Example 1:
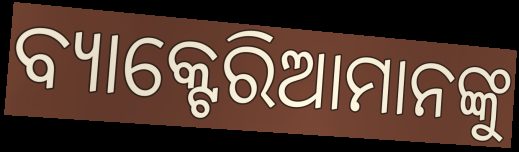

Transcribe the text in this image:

ବ୍ୟାକ୍ଟେରିଆମାନଙ୍କୁ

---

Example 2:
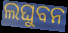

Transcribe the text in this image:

ଲଘୁବନ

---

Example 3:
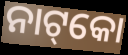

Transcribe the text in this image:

ନାଟ୍‌କୋ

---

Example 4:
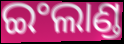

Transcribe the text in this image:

ଇଂଲାଣ୍ଡ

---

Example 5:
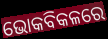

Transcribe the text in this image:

ଭୋକବିକଳରେ